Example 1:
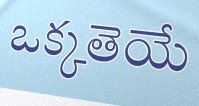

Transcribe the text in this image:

ఒక్కతెయే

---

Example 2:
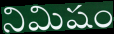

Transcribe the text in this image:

నిమిషం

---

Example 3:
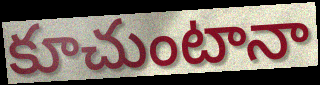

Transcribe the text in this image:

కూచుంటానా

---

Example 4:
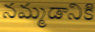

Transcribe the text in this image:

నమ్మడానికి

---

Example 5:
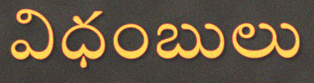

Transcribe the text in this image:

విధంబులు